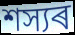
শস্যৰ